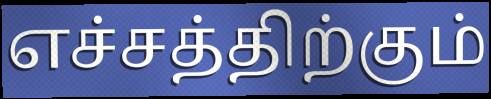
எச்சத்திற்கும்